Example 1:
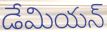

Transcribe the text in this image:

డేమియన్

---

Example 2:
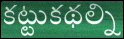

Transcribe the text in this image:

కట్టుకథల్ని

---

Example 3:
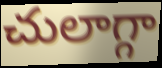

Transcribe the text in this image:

చులాగ్గా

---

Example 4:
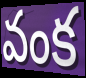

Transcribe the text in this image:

వంక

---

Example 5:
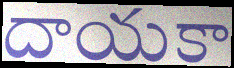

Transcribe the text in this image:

దాయకా